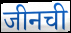
जीनची